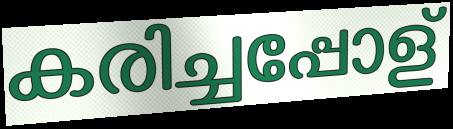
കരിച്ചപ്പോള്